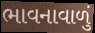
ભાવનાવાળું